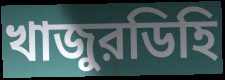
খাজুরডিহি